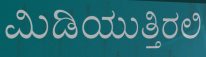
ಮಿಡಿಯುತ್ತಿರಲಿ